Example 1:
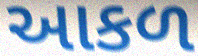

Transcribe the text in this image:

આકળ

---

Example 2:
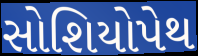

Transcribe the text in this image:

સોશિયોપેથ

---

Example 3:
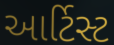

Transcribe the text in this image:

આર્ટિસ્ટ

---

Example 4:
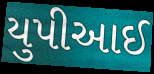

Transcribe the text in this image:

યુપીઆઈ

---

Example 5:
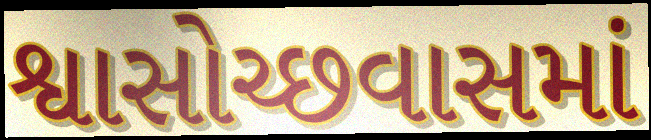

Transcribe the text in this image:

શ્વાસોચ્છવાસમાં